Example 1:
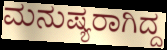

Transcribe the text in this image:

ಮನುಷ್ಯರಾಗಿದ್ದ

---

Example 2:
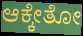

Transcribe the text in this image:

ಆಕ್ಕೇತೋ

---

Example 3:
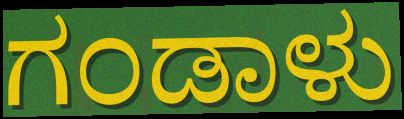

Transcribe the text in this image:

ಗಂಡಾಳು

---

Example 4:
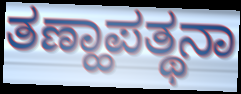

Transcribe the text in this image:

ತಣ್ಹಾಪತ್ಥನಾ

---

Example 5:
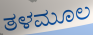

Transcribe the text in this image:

ತಳಮೂಲ